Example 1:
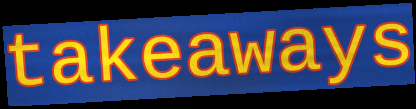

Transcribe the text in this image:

takeaways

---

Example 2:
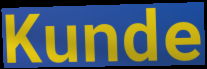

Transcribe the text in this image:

Kunde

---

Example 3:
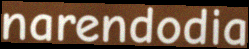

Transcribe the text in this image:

narendodia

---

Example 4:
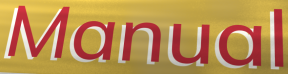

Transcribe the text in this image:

Manual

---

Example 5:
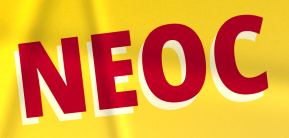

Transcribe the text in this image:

NEOC